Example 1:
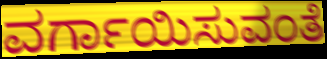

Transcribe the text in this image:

ವರ್ಗಾಯಿಸುವಂತೆ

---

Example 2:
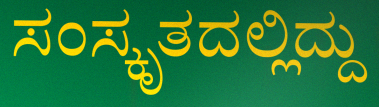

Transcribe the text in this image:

ಸಂಸ್ಕೃತದಲ್ಲಿದ್ದು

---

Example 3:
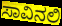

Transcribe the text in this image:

ಸಾವಿನಲಿ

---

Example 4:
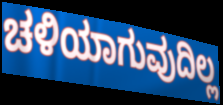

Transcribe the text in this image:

ಚಳಿಯಾಗುವುದಿಲ್ಲ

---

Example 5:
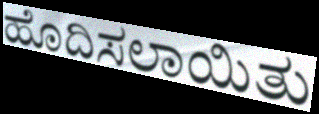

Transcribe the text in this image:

ಹೊದಿಸಲಾಯಿತು